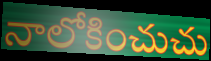
నాలోకించుచు